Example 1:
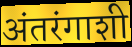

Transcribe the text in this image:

अंतरंगाशी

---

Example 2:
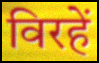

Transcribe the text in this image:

विरहें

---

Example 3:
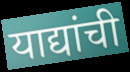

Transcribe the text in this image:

याद्यांची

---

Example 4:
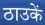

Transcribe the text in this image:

ठाउकें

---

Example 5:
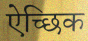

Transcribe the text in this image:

ऐच्छिक